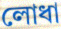
লোধা